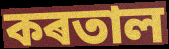
কৰতাল